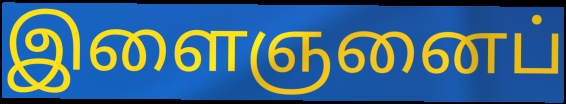
இளைஞனைப்